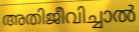
അതിജീവിച്ചാൽ